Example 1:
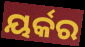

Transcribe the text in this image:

ୟର୍କର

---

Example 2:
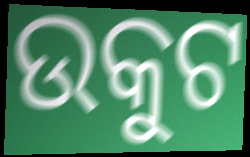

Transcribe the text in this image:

ଉକୁଟ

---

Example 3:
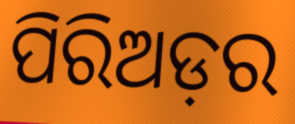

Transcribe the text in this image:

ପିରିଅଡ଼ର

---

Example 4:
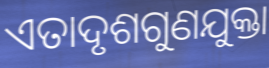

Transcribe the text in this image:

ଏତାଦୃଶଗୁଣଯୁକ୍ତା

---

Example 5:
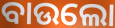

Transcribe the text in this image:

ବାଉଲୋ